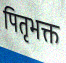
पितृभक्त